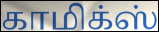
காமிக்ஸ்